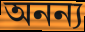
অনন্য